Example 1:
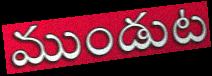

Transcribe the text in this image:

ముండుట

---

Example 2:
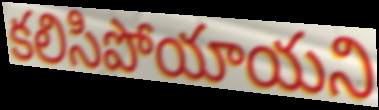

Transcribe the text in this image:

కలిసిపోయాయని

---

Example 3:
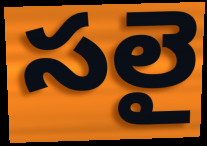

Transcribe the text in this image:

సలై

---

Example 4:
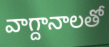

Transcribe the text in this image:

వాగ్దానాలతో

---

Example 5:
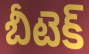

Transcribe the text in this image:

బీటెక్